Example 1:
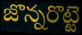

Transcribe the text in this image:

జొన్నరొట్టె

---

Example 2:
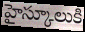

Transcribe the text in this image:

హైస్కూలుకి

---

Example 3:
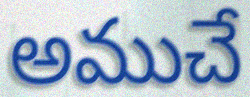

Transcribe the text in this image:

అముచే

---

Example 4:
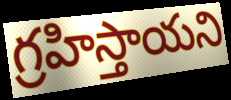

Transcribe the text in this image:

గ్రహిస్తాయని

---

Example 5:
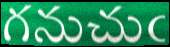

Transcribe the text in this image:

గనుచుఁ